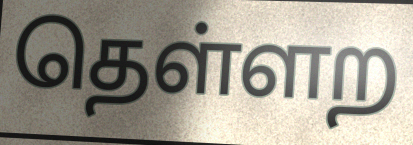
தெள்ளற